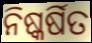
ନିଷ୍କର୍ଷିତ